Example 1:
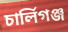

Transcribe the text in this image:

চার্লিগঞ্জ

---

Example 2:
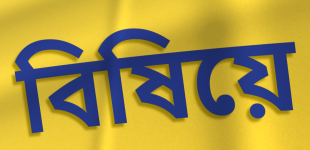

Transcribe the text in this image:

বিষিয়ে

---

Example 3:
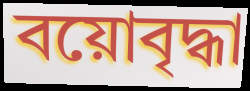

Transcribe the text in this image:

বয়োবৃদ্ধা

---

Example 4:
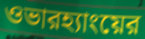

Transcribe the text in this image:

ওভারহ্যাংয়ের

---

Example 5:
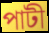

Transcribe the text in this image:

পাটী